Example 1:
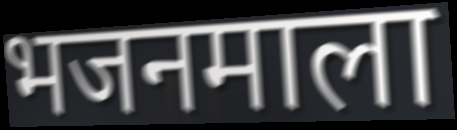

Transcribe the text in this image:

भजनमाला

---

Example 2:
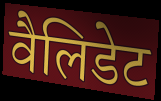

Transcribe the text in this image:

वैलिडेट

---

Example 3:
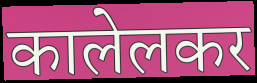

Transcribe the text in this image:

कालेलकर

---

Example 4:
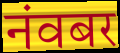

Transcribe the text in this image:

नंवबर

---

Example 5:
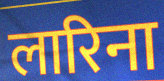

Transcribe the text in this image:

लारिना